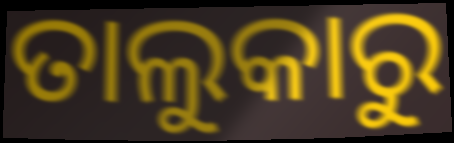
ତାଲୁକାରୁ